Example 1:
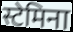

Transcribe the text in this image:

स्टेमिना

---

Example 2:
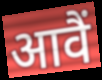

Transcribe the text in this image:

आवैं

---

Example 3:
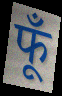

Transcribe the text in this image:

फूँ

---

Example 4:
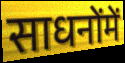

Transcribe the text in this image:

साधनोंमें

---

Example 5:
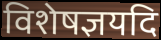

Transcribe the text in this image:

विशेषज्ञयदि